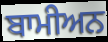
ਬਾਮੀਅਨ